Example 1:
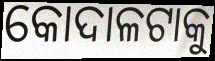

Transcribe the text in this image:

କୋଦାଳଟାକୁ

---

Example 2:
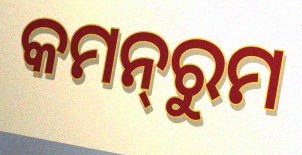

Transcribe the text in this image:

କମନ୍‌ରୁମ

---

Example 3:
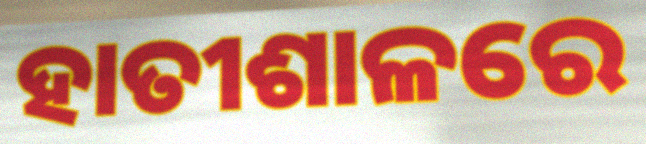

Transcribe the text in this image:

ହାତୀଶାଳରେ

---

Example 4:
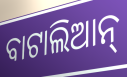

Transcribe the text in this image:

ବାଟାଲିଆନ୍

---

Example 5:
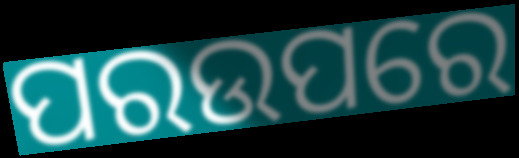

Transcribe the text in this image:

ପରଉପରେ